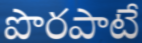
పొరపాటే